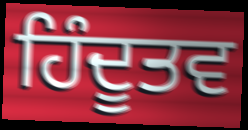
ਹਿੰਦੂਤਵ